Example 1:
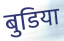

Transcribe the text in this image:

बुडिया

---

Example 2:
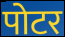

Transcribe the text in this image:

पोटर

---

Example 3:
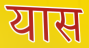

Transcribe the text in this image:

यास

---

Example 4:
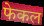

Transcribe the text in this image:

फेकल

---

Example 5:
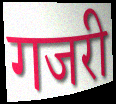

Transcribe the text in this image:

गजरी